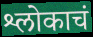
श्लोकाचं